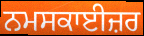
ਨਮਸਕਾਈਜ਼ਰ